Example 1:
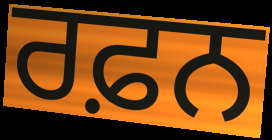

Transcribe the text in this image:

ਰਫ਼ਨ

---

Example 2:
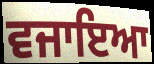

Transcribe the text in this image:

ਵਜਾਇਆ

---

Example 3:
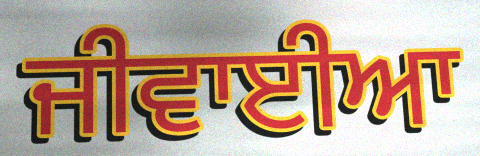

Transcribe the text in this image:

ਜੀਵਾਈਆ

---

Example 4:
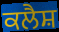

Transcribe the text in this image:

ਕਲੈਸ਼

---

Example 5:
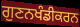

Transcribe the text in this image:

ਗੁਣਨਖੰਡੀਕਰਨ